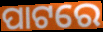
ପାଟରେ